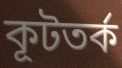
কূটতর্ক